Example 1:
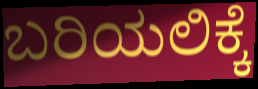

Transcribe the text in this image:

ಬರಿಯಲಿಕ್ಕೆ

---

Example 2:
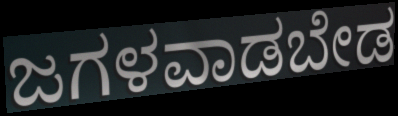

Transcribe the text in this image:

ಜಗಳವಾಡಬೇಡ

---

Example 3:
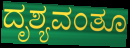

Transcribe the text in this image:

ದೃಶ್ಯವಂತೂ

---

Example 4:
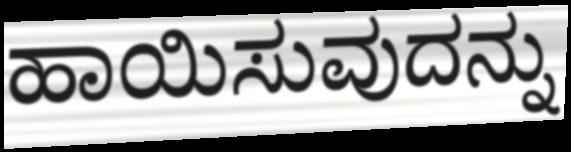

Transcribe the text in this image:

ಹಾಯಿಸುವುದನ್ನು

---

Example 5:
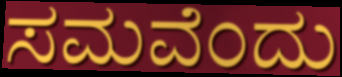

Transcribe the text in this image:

ಸಮವೆಂದು